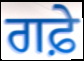
ਗਫ਼ੇ